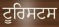
ਟੂਰਿਸਟਸ